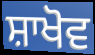
ਸ਼ਾਖੋਵ